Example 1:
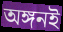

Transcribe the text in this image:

অঙ্গনই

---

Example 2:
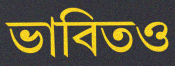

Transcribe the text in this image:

ভাবিতও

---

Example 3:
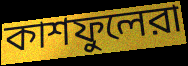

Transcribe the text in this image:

কাশফুলেরা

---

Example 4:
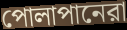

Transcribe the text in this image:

পোলাপানেরা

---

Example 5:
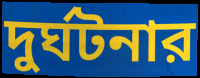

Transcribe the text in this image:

দুর্ঘটনার